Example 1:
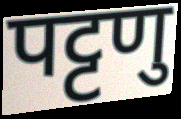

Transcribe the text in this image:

पट्टणु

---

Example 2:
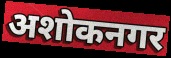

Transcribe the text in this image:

अशोकनगर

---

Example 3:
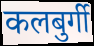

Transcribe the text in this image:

कलबुर्गी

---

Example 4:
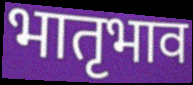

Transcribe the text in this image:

भातृभाव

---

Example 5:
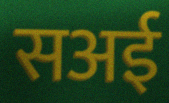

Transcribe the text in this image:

सअई